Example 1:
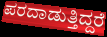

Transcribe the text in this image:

ಪರದಾಡುತ್ತಿದ್ದರೆ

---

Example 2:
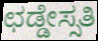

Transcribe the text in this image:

ಛಡ್ಡೇಸ್ಸತಿ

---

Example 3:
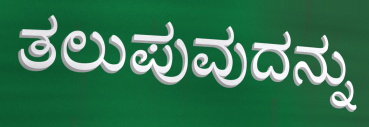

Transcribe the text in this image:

ತಲುಪುವುದನ್ನು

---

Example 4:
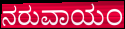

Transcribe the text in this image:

ನರುವಾಯಂ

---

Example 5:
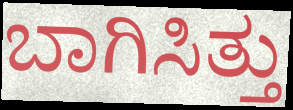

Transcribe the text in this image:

ಬಾಗಿಸಿತ್ತು